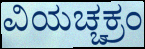
ವಿಯಚ್ಚಕ್ರಂ